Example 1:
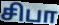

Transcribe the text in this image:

சிபா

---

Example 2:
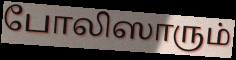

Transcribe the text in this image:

போலிஸாரும்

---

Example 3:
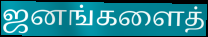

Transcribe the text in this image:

ஜனங்களைத்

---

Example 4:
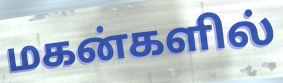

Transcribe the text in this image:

மகன்களில்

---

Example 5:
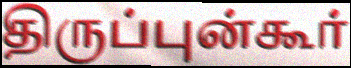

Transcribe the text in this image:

திருப்புன்கூர்